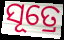
ସୂତ୍ରେ